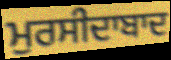
ਮੁਰਸੀਦਾਬਾਦ